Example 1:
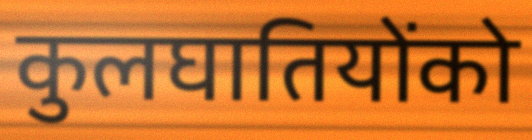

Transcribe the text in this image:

कुलघातियोंको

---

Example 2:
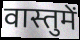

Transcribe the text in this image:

वास्तुमें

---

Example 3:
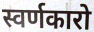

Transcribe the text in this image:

स्वर्णकारो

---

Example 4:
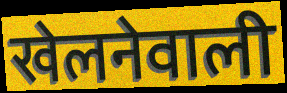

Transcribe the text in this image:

खेलनेवाली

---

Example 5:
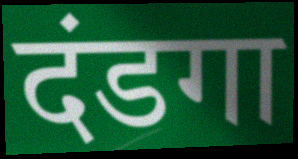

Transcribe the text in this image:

दंडगा